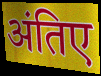
अंतिए